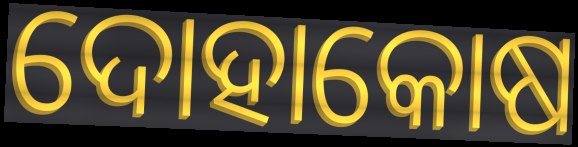
ଦୋହାକୋଷ